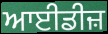
ਆਈਡੀਜ਼